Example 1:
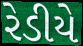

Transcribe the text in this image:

રેડીયે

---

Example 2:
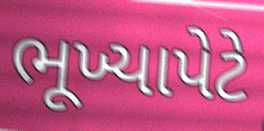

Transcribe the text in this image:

ભૂખ્યાપેટે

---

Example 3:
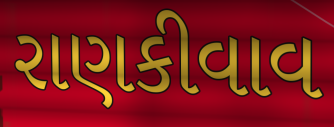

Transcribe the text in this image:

રાણકીવાવ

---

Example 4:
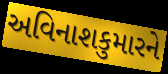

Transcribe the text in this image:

અવિનાશકુમારને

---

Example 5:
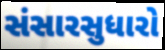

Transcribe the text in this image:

સંસારસુધારો